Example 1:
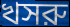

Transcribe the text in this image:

খসরু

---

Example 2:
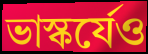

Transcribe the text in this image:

ভাস্কর্যেও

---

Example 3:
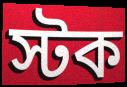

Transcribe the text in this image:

স্টক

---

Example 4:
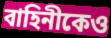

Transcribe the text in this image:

বাহিনীকেও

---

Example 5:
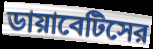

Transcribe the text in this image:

ডায়াবেটিসের